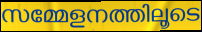
സമ്മേളനത്തിലൂടെ